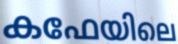
കഫേയിലെ